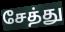
சேத்து